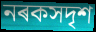
নৰকসদৃশ